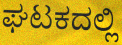
ಘಟಕದಲ್ಲಿ